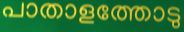
പാതാളത്തോടു